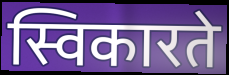
स्विकारते